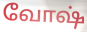
வோஷ்